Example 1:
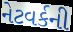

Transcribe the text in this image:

નેટવર્કની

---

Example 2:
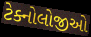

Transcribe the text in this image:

ટેક્નોલોજીઓ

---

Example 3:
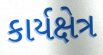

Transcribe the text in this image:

કાર્યક્ષેત્ર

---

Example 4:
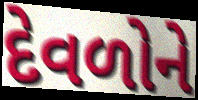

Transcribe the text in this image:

દેવળોને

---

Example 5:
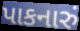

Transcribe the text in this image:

પાકનારું